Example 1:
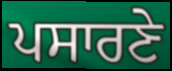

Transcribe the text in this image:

ਪਸਾਰਣੇ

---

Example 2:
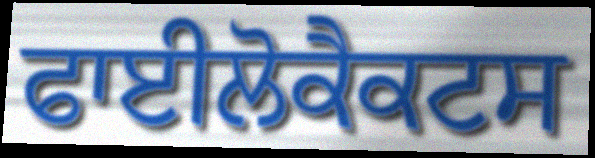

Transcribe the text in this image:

ਫਾਈਲੋਕੈਕਟਸ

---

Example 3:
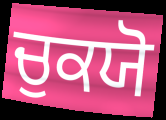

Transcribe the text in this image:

ਚੁਕਯੋ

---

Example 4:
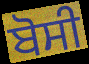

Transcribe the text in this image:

ਬੋਸੀ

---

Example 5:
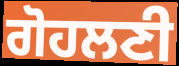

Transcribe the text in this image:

ਗੋਹਲਣੀ